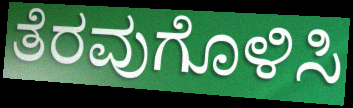
ತೆರವುಗೊಳಿಸಿ